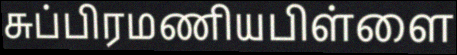
சுப்பிரமணியபிள்ளை